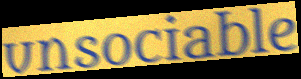
unsociable